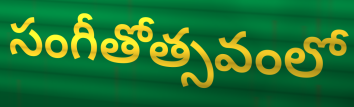
సంగీతోత్సవంలో